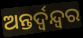
ଅନ୍ତର୍ଦ୍ୱନ୍ଦ୍ୱର